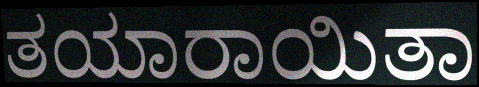
ತಯಾರಾಯಿತಾ